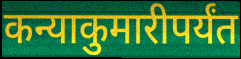
कन्याकुमारीपर्यंत